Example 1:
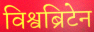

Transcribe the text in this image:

विश्वब्रिटेन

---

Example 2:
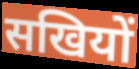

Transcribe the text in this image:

सखियों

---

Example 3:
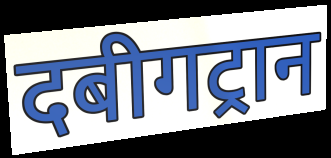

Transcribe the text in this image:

दबीगट्रान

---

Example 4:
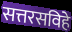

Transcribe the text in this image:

सत्तरसविहे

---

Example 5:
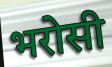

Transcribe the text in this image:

भरोसी